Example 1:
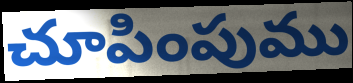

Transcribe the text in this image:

చూపింపుము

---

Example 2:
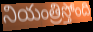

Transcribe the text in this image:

నియంత్రిస్తోంది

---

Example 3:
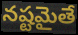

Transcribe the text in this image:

నష్టమైతే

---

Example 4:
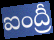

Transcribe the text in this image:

ఐంద్రీ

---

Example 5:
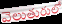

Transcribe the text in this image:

వెలుతురులో